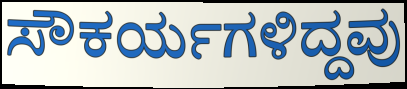
ಸೌಕರ್ಯಗಳಿದ್ದವು